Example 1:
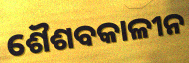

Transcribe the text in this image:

ଶୈଶବକାଳୀନ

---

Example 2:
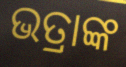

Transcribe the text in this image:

ଭତ୍ରାଙ୍କ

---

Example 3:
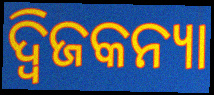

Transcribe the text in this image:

ଦ୍ୱିଜକନ୍ୟା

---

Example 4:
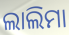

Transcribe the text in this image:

ଲାଲିମା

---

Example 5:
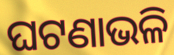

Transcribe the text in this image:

ଘଟଣାଭଳି